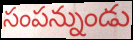
సంపన్నుండు